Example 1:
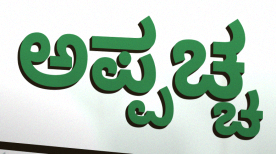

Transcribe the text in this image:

ಅಪ್ಪಚ್ಚ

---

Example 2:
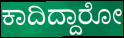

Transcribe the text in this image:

ಕಾದಿದ್ದಾರೋ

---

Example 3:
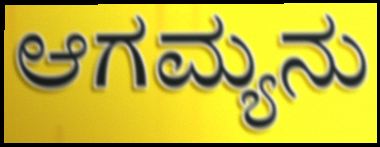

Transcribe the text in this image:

ಆಗಮ್ಯನು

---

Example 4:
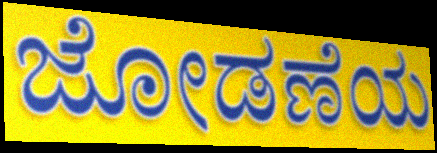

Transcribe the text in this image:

ಜೋಡಣೆಯ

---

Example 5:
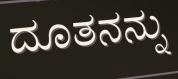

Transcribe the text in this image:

ದೂತನನ್ನು